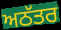
ਅਠੱਤਰ